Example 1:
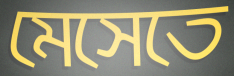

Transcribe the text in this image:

মেসেতে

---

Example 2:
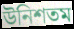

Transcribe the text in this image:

উনিশতম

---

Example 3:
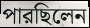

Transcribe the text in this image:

পারছিলেন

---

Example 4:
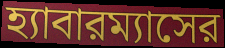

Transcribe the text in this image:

হ্যাবারম্যাসের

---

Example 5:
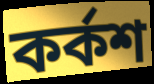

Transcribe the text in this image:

কর্কশ